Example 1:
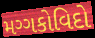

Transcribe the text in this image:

મગ્ગકોવિદો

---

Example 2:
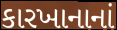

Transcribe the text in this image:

કારખાનાનાં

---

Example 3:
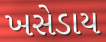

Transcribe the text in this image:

ખસેડાય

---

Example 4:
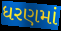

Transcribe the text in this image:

ધરણમાં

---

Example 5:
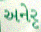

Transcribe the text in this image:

અનેરૃ